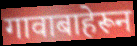
गावाबाहेरून